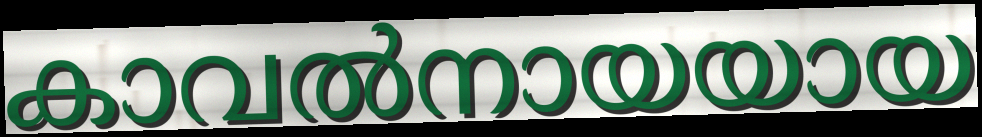
കാവൽനായയായ